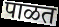
पाळत